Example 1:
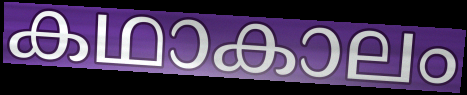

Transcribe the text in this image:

കഥാകാലം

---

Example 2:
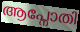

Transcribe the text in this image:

ആപ്നോതി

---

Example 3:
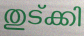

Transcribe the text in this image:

തുട്ക്കി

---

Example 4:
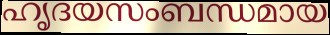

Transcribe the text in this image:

ഹൃദയസംബന്ധമായ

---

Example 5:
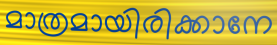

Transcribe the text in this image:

മാത്രമായിരിക്കാനേ